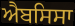
ਐਬਸਿਸਾ